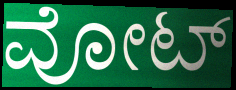
ವೋಟ್